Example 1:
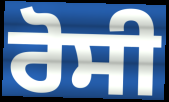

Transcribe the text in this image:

ਰੋਸੀ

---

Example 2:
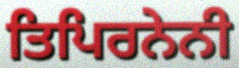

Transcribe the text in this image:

ਤਿਪਿਰਨੇਨੀ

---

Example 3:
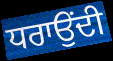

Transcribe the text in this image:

ਧਰਾਉਂਦੀ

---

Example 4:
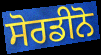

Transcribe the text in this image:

ਸੋਰਡੀਨੋ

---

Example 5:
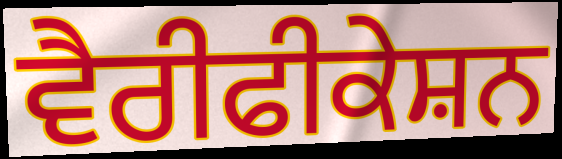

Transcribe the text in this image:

ਵੈਰੀਫੀਕੇਸ਼ਨ